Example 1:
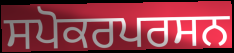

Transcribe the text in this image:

ਸਪੋਕਰਪਰਸਨ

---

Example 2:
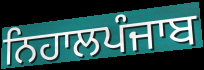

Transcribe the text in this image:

ਨਿਹਾਲਪੰਜਾਬ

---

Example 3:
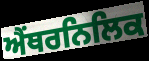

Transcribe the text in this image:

ਐਂਥਰਨਿਲਿਕ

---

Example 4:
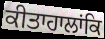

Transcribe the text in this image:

ਕੀਤਾਹਾਲਾਂਕਿ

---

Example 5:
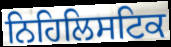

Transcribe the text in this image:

ਨਿਹਿਲਿਸਟਿਕ